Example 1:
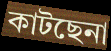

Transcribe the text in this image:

কাটছেনা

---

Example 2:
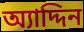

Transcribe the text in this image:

অ্যাদ্দিন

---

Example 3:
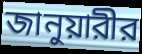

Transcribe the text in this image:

জানুয়ারীর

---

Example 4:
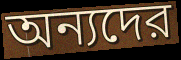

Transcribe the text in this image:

অন্যদের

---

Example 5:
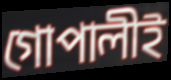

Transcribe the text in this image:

গোপালীই